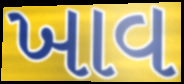
ખાવ